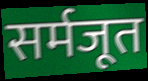
सर्मजूत